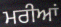
ਮਰੀਆਂ